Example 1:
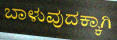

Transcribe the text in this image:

ಬಾಳುವುದಕ್ಕಾಗಿ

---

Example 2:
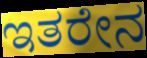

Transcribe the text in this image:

ಇತರೇನ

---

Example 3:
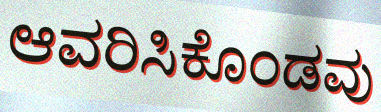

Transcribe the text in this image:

ಆವರಿಸಿಕೊಂಡವು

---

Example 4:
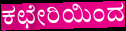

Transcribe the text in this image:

ಕಛೇರಿಯಿಂದ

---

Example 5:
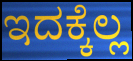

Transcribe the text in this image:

ಇದಕ್ಕೆಲ್ಲ